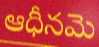
ఆధీనమె